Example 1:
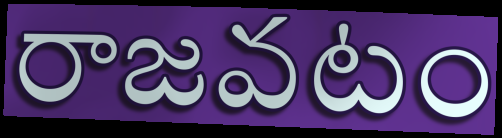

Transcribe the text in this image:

రాజవటం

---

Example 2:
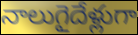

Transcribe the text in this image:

నాలుగైదేళ్లుగా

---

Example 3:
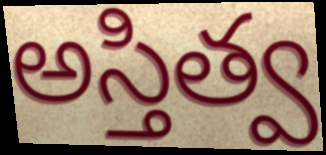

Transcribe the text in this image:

అస్తిత్వ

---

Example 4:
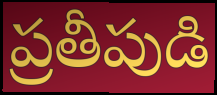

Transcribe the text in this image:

ప్రతీపుడి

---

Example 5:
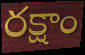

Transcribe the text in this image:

రక్షాం